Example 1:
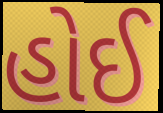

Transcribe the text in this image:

હોઈ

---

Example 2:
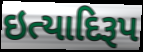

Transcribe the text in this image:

ઇત્યાદિરૂપ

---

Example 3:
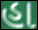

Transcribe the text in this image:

હા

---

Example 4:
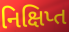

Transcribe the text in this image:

નિક્ષિપ્ત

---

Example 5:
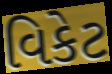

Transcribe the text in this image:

વિકેટ